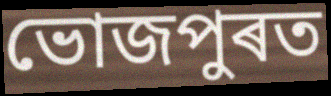
ভোজপুৰত